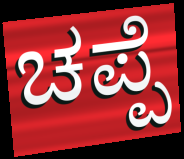
ಚಪ್ಪೆ